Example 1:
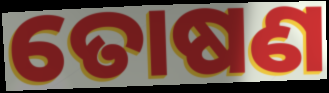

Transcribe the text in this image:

ତୋଷଣ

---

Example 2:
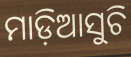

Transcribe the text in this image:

ମାଡ଼ିଆସୁଚି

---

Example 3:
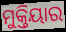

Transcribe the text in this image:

ମୁକ୍ତିୟାର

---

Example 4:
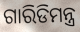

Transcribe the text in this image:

ଗାରିଡିମନ୍ତ୍ର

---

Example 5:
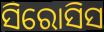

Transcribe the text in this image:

ସିରୋସିସ